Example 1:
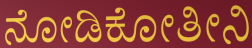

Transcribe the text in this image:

ನೋಡಿಕೋತೀನಿ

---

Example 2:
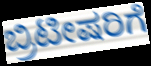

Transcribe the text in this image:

ಬ್ರಿಟೀಷರಿಗೆ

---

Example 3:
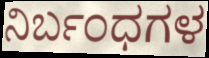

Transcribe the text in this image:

ನಿರ್ಬಂಧಗಳ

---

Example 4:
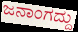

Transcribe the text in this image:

ಜನಾಂಗದ್ದು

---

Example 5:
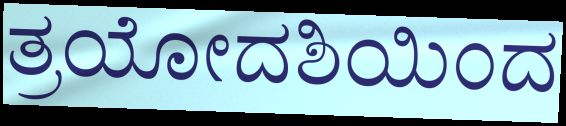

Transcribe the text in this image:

ತ್ರಯೋದಶಿಯಿಂದ